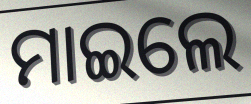
ମାଇଲେ